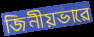
জিনীয়ভাৱে